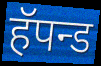
हॅपन्ड